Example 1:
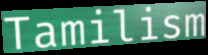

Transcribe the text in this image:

Tamilism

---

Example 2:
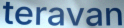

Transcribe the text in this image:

teravan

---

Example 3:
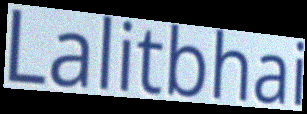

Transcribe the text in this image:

Lalitbhai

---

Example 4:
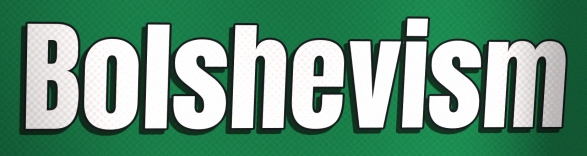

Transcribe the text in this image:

Bolshevism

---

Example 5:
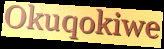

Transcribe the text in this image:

Okuqokiwe